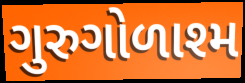
ગુરુગોળાશ્મ